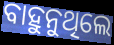
ବାହୁନୁଥିଲେ